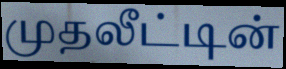
முதலீட்டின்